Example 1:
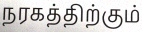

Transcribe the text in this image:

நரகத்திற்கும்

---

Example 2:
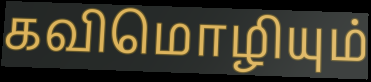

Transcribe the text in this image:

கவிமொழியும்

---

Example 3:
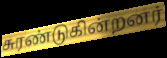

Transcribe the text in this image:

சுரண்டுகின்றனர்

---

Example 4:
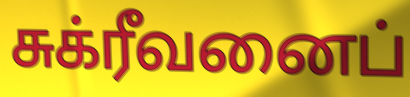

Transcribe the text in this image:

சுக்ரீவனைப்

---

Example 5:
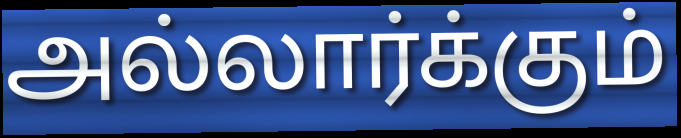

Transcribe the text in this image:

அல்லார்க்கும்